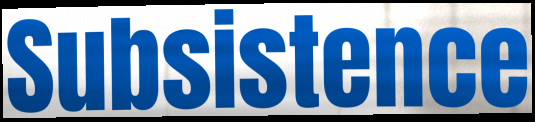
Subsistence